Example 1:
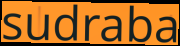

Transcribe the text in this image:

sudraba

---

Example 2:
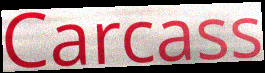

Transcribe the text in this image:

Carcass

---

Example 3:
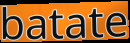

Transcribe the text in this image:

batate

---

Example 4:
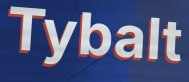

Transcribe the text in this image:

Tybalt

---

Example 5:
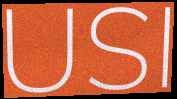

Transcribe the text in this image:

USI